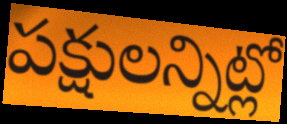
పక్షులన్నిట్లో